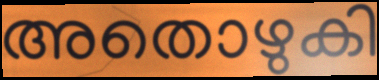
അതൊഴുകി